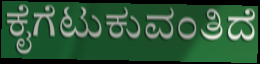
ಕೈಗೆಟುಕುವಂತಿದೆ